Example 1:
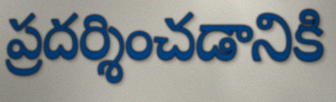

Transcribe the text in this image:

ప్రదర్శించడానికి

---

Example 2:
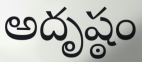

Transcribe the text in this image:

అదృష్ఠం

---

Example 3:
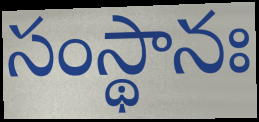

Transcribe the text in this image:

సంస్థానః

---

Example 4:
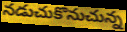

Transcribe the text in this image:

నడుచుకొనుచున్న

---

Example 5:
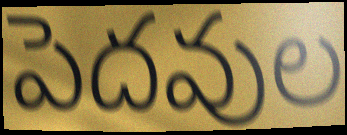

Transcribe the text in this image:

పెదవుల